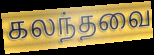
கலந்தவை